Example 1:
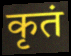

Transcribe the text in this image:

कृतं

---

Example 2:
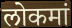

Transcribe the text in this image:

लोकमां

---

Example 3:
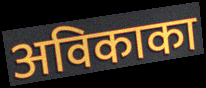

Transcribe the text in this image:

अविकाका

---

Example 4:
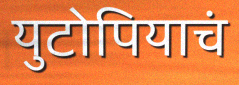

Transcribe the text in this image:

युटोपियाचं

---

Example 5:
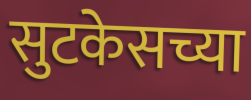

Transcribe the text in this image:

सुटकेसच्या